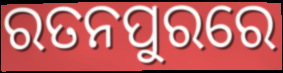
ରତନପୁରରେ